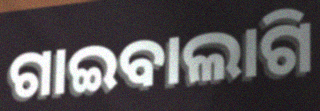
ଗାଇବାଲାଗି